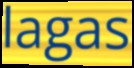
lagas